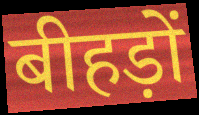
बीहड़ों